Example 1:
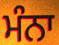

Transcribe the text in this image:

ਮੰਨਾ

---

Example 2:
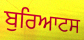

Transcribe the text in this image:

ਬੁਰਿਆਟਸ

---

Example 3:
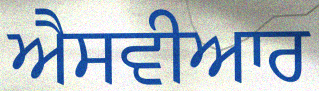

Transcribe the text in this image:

ਐਸਵੀਆਰ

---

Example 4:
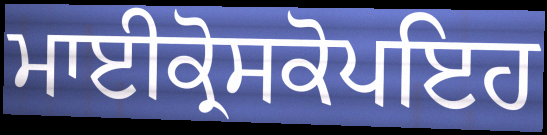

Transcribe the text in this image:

ਮਾਈਕ੍ਰੋਸਕੋਪਇਹ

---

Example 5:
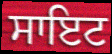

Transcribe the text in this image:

ਸਾਇਟ